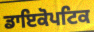
ਡਾਇਕੋਪਟਿਕ